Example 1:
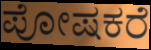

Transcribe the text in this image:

ಪೋಷಕರೆ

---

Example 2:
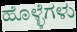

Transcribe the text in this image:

ಹೊಳ್ಳೆಗಳು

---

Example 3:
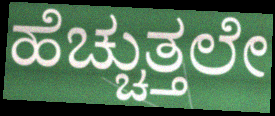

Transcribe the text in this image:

ಹೆಚ್ಚುತ್ತಲೇ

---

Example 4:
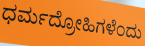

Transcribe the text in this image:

ಧರ್ಮದ್ರೋಹಿಗಳೆಂದು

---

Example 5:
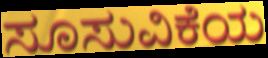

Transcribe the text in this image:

ಸೂಸುವಿಕೆಯ